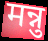
मन्नु